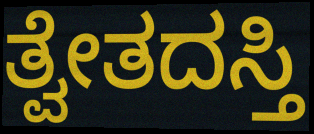
ತ್ವೇತದಸ್ತಿ